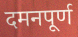
दमनपूर्ण